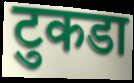
टुकडा